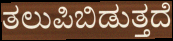
ತಲುಪಿಬಿಡುತ್ತದೆ